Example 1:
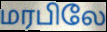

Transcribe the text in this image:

மரபிலே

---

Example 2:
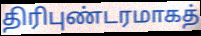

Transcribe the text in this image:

திரிபுண்டரமாகத்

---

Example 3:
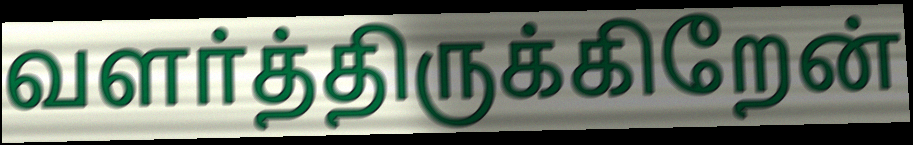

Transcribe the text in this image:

வளர்த்திருக்கிறேன்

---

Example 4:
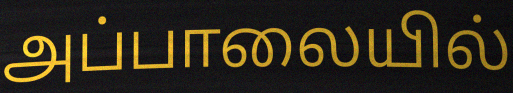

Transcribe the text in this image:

அப்பாலையில்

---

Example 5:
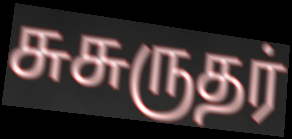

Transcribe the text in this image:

சுசுருதர்